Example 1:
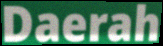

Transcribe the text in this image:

Daerah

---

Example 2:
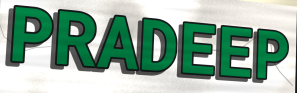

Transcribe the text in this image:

PRADEEP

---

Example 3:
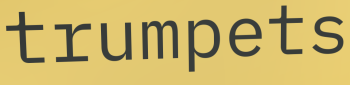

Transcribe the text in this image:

trumpets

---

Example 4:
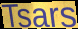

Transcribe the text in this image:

Tsars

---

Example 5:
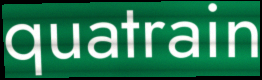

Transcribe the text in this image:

quatrain